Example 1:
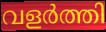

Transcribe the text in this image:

വളർത്തി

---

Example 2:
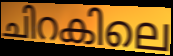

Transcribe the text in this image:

ചിറകിലെ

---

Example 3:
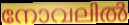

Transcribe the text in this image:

നോവലിൽ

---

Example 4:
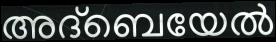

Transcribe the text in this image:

അദ്ബെയേൽ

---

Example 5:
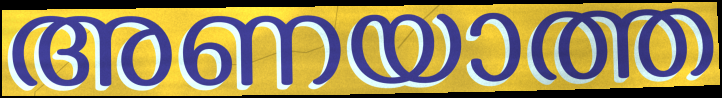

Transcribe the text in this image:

അണയാത്ത